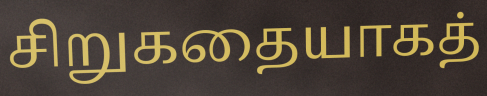
சிறுகதையாகத்